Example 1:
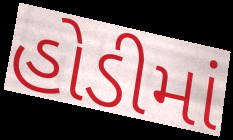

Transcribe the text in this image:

હોડીમાં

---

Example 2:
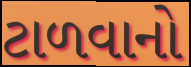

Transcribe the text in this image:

ટાળવાનો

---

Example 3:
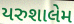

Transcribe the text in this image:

યરુશાલેમ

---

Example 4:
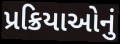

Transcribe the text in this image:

પ્રક્રિયાઓનું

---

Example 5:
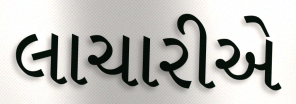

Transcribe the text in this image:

લાચારીએ